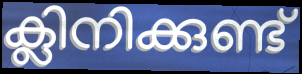
ക്ലിനിക്കുണ്ട്